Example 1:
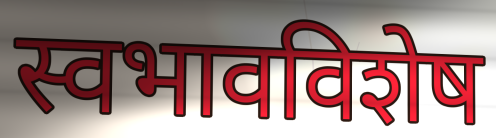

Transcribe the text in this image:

स्वभावविशेष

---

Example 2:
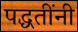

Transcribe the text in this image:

पद्धतींनी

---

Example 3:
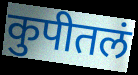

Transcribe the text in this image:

कुपीतलं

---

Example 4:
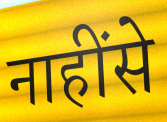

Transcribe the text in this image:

नाहींसे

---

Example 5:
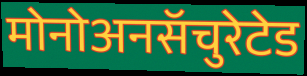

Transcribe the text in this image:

मोनोअनसॅचुरेटेड